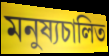
মনুষ্যচালিত